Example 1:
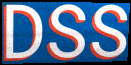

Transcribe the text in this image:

DSS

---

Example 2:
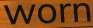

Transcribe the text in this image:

worn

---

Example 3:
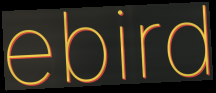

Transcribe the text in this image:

ebird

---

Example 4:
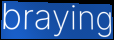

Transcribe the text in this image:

braying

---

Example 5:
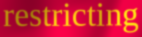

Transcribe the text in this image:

restricting